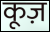
कूज़